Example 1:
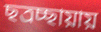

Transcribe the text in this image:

ছত্রচ্ছায়ায়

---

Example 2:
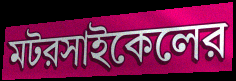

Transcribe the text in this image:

মটরসাইকেলের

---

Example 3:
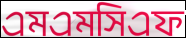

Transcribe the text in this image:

এমএমসিএফ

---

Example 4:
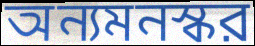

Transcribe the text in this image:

অন্যমনস্কর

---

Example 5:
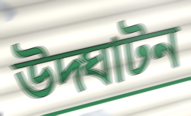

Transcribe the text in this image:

উদ্ঘাটন